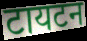
टायटन